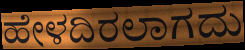
ಹೇಳದಿರಲಾಗದು